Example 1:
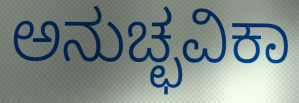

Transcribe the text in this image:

ಅನುಚ್ಛವಿಕಾ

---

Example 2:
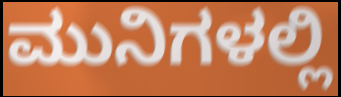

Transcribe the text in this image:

ಮುನಿಗಳಲ್ಲಿ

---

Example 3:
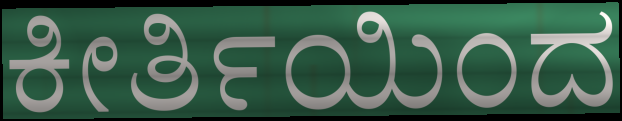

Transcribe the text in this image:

ಕೀರ್ತಿಯಿಂದ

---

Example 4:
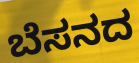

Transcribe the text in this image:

ಬೆಸನದ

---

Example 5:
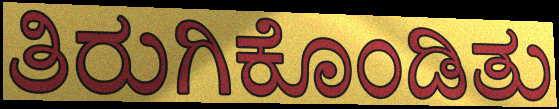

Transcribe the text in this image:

ತಿರುಗಿಕೊಂಡಿತು